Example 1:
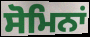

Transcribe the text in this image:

ਸੋਮਿਨਾਂ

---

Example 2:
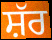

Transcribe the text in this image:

ਸ਼ੱਰ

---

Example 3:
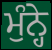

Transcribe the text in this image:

ਮੁੰਨ੍ਹੇ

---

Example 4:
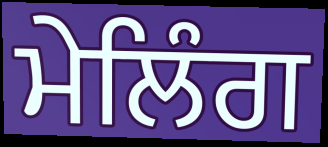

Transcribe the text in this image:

ਮੇਲਿੰਗ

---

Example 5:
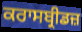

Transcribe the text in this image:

ਕਰਾਸਬ੍ਰੀਡਜ਼